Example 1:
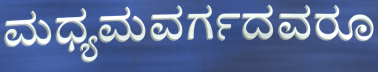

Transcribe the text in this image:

ಮಧ್ಯಮವರ್ಗದವರೂ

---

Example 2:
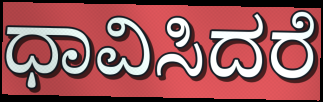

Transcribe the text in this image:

ಧಾವಿಸಿದರೆ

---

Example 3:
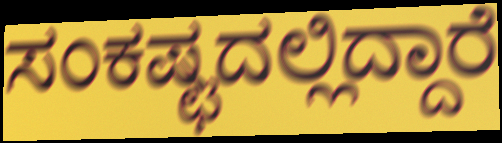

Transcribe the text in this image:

ಸಂಕಷ್ಟದಲ್ಲಿದ್ದಾರೆ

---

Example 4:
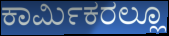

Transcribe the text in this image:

ಕಾರ್ಮಿಕರಲ್ಲೂ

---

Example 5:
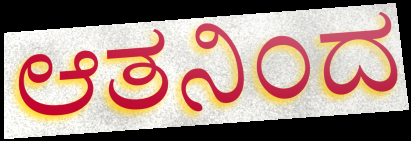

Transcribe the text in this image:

ಆತನಿಂದ